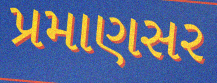
પ્રમાણસર